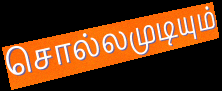
சொல்லமுடியும்